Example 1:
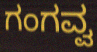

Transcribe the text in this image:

ಗಂಗವ್ವ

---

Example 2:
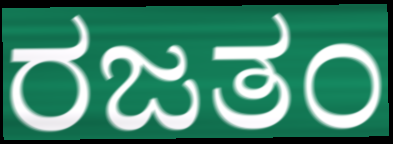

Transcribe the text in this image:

ರಜತಂ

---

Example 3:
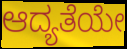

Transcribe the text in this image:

ಆದ್ಯತೆಯೇ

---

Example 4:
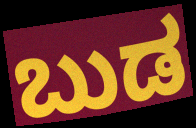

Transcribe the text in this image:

ಬುಡ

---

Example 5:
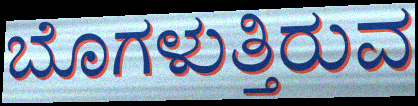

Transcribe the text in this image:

ಬೊಗಳುತ್ತಿರುವ